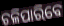
ଚଳିପାରିବେ